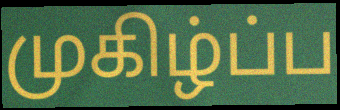
முகிழ்ப்ப